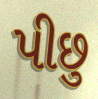
પીછુ